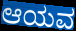
ಆಯವ